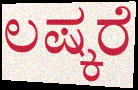
ಲಷ್ಕರೆ